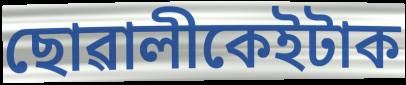
ছোৱালীকেইটাক